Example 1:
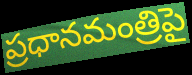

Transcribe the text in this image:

ప్రధానమంత్రిపై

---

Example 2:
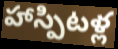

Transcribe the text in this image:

హాస్పిటళ్ల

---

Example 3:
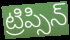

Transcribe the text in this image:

ట్రిప్సిన్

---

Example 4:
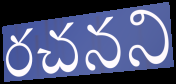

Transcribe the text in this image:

రచనని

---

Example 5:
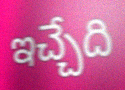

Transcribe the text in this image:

ఇచ్చేది